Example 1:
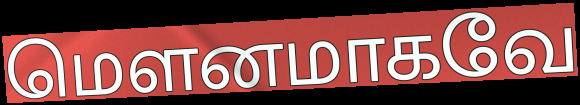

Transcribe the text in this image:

மெளனமாகவே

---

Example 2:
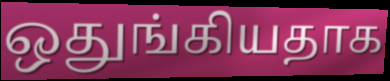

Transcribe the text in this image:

ஒதுங்கியதாக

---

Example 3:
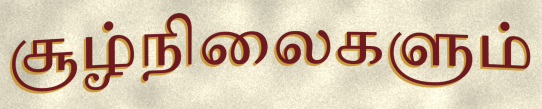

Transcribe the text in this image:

சூழ்நிலைகளும்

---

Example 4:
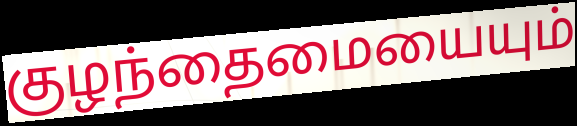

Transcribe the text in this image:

குழந்தைமையையும்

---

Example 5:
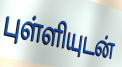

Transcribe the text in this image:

புள்ளியுடன்